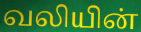
வலியின்